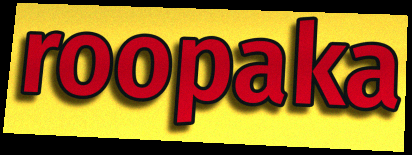
roopaka